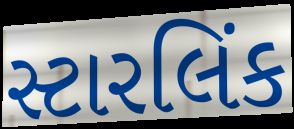
સ્ટારલિંક